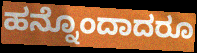
ಹನ್ನೊಂದಾದರೂ